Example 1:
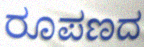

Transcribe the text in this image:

ರೂಪಣದ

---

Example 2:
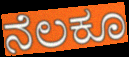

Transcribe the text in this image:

ನೆಲಕೂ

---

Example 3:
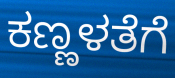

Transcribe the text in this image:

ಕಣ್ಣಳತೆಗೆ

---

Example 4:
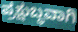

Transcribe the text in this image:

ಪ್ರಕ್ಷುಬ್ಧವಾಗಿ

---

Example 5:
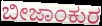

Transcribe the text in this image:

ಬೀಜಾಂಕುರ